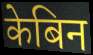
केबिन